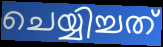
ചെയ്യിച്ചത്